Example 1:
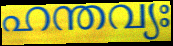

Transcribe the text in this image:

ഹന്തവ്യഃ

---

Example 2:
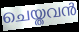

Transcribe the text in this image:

ചെയ്തവൻ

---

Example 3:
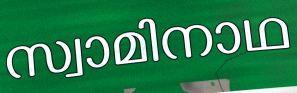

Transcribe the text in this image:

സ്വാമിനാഥ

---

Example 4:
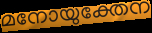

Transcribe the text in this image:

മനോയുക്തേന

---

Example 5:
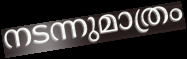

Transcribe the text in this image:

നടന്നുമാത്രം